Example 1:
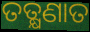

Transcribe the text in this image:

ତତ୍କ୍ଷଣାତ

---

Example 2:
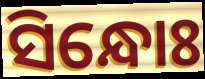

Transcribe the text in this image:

ସିନ୍ଧୋଃ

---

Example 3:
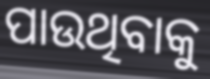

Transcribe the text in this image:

ପାଉଥିବାକୁ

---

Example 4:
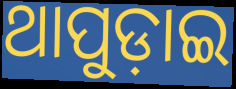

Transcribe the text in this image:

ଥାପୁଡ଼ାଇ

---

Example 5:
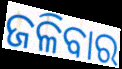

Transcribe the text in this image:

ଜଳିବାର